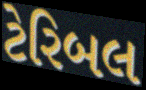
ટેરિબલ